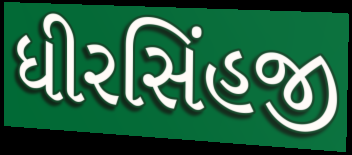
ધીરસિંહજી